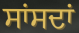
ਸਾਂਸਦਾਂ